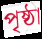
পৃষ্ঠা